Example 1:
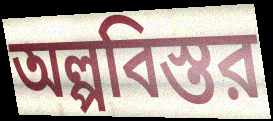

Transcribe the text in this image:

অল্পবিস্তর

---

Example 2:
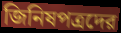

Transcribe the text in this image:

জিনিষপত্রদের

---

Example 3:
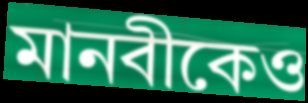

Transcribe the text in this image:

মানবীকেও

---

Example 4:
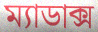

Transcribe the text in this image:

ম্যাডাক্স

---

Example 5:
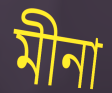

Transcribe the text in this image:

মীনা